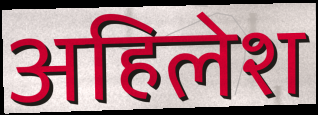
अहिलेश